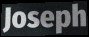
Joseph